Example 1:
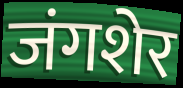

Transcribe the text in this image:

जंगशेर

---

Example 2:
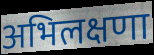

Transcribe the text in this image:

अभिलक्षणा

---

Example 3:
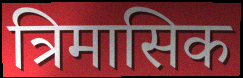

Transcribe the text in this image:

त्रिमासिक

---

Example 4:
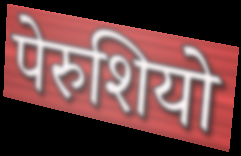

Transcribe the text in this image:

पेरुशियो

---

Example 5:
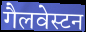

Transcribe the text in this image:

गैलवेस्टन